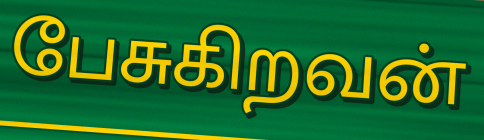
பேசுகிறவன்